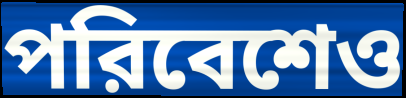
পরিবেশেও